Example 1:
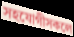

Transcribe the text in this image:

সহযোগীসকলে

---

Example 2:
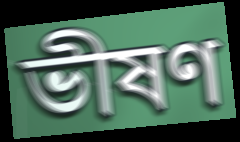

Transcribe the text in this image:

ভীষণ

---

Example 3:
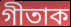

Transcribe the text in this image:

গীতাক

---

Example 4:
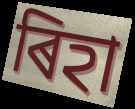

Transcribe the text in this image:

ৰিহা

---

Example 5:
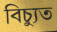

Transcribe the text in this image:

বিচ্যুত